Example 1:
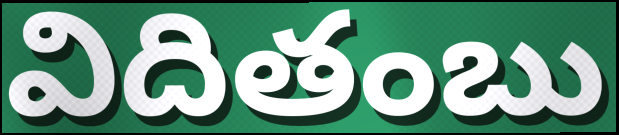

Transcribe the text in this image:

విదితంబు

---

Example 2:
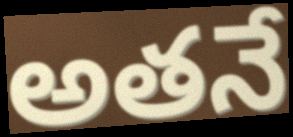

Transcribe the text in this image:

అతనే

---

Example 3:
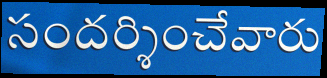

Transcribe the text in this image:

సందర్శించేవారు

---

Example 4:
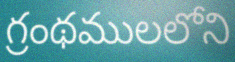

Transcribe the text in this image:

గ్రంథములలోని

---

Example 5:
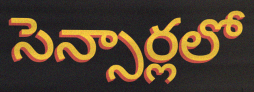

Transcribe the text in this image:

సెన్సార్లలో